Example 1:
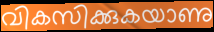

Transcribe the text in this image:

വികസിക്കുകയാണു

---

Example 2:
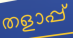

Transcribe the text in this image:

തളാപ്പ്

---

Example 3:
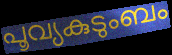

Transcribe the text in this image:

പൂവ്യകുടുംബം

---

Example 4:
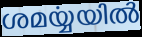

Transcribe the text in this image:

ശമൎയ്യയിൽ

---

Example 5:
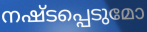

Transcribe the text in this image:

നഷ്ടപ്പെടുമോ